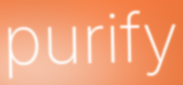
purify